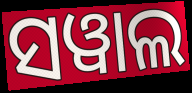
ସୱାଲ